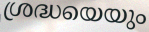
ശ്രദ്ധയെയും